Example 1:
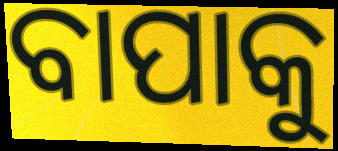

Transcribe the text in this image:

ବାପାକୁ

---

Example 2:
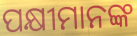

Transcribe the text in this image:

ପକ୍ଷୀମାନଙ୍କ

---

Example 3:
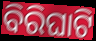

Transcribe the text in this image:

ବିରିଘାଟି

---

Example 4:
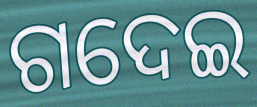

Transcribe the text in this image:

ଗଦେଇ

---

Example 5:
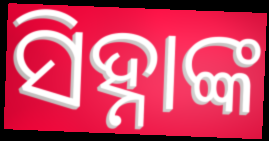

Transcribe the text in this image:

ସିହ୍ନାଙ୍କ